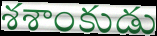
శశాంకుడు